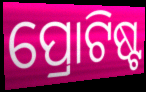
ପ୍ରୋଟିଷ୍ଟ